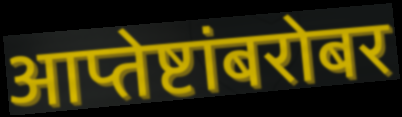
आप्तेष्टांबरोबर